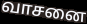
வாசனை